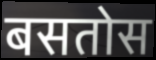
बसतोस